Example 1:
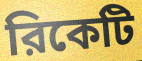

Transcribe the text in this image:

রিকেটি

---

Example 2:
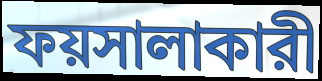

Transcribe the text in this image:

ফয়সালাকারী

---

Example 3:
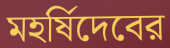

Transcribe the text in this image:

মহর্ষিদেবের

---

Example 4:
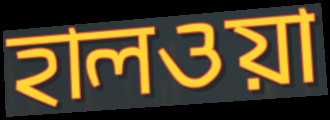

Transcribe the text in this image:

হালওয়া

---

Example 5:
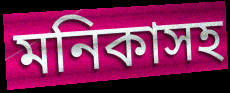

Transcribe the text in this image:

মনিকাসহ